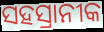
ସହସ୍ରାନୀକ